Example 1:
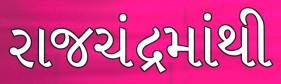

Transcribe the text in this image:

રાજચંદ્રમાંથી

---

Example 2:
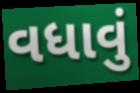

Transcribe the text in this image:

વધાવું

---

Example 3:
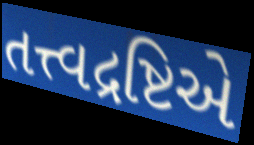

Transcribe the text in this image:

તત્ત્વદ્રષ્ટિએ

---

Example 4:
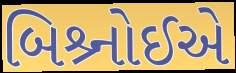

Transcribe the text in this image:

બિશ્ર્નોઈએ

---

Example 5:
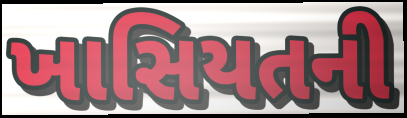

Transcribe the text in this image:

ખાસિયતની